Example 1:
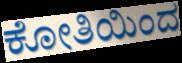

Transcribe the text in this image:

ಕೋತಿಯಿಂದ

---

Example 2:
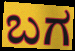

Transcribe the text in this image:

ಬಗ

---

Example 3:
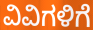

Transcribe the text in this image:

ವಿವಿಗಳಿಗೆ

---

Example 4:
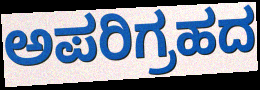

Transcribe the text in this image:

ಅಪರಿಗ್ರಹದ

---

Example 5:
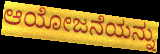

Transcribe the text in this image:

ಆಯೋಜನೆಯನ್ನು